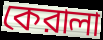
কেরালা